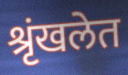
श्रृंखलेत